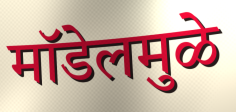
मॉडेलमुळे